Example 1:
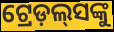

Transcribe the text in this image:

ଟ୍ରେଡ଼ଲ୍‍ସଙ୍କୁ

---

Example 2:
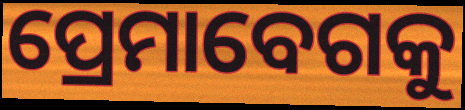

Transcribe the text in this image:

ପ୍ରେମାବେଗକୁ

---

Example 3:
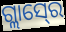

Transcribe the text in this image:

ଗ୍ଲାସ୍‍ରେ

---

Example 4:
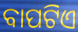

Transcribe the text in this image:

ବାପଟିଏ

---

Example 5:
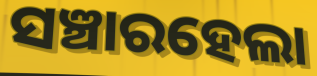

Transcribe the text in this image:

ସଞ୍ଚାରହେଲା